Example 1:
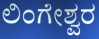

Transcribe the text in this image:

ಲಿಂಗೇಶ್ವರ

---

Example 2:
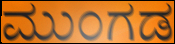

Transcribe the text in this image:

ಮುಂಗಡ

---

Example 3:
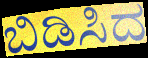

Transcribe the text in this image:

ಬಿಡಿಸಿದ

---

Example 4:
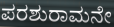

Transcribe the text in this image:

ಪರಶುರಾಮನೇ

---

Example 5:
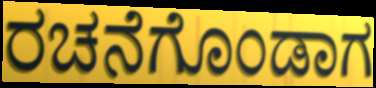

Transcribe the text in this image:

ರಚನೆಗೊಂಡಾಗ